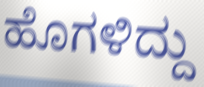
ಹೊಗಳಿದ್ದು